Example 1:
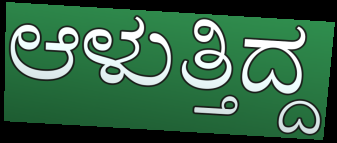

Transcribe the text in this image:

ಆಳುತ್ತಿದ್ದ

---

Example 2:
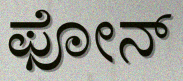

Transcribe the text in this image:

ಫೋನ್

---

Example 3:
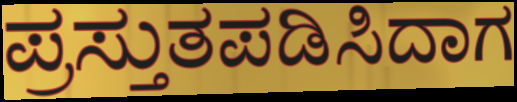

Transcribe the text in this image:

ಪ್ರಸ್ತುತಪಡಿಸಿದಾಗ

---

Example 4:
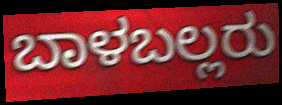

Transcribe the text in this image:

ಬಾಳಬಲ್ಲರು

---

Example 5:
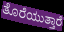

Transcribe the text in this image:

ತೊರೆಯುತ್ತಾರೆ